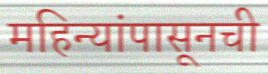
महिन्यांपासूनची